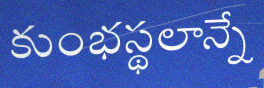
కుంభస్థలాన్నే